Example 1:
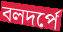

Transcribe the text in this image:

বলদর্পে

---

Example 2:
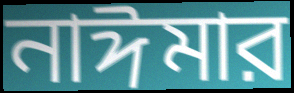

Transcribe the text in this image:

নাঈমার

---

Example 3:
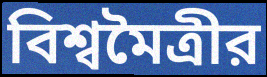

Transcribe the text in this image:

বিশ্বমৈত্রীর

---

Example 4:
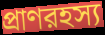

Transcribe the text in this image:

প্রাণরহস্য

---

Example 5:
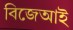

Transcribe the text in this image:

বিজেআই